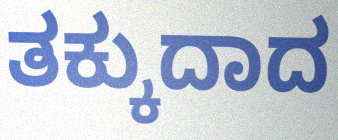
ತಕ್ಕುದಾದ